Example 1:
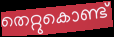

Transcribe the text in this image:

തെറ്റുകൊണ്ട്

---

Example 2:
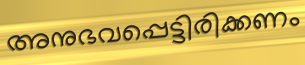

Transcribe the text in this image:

അനുഭവപ്പെട്ടിരിക്കണം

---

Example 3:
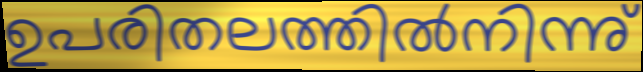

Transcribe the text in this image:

ഉപരിതലത്തിൽനിന്നു്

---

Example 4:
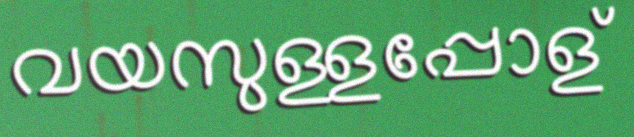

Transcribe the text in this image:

വയസുള്ളപ്പോള്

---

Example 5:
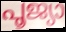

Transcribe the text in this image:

പൂജ്യാ